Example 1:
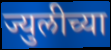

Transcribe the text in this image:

ज्युलीच्या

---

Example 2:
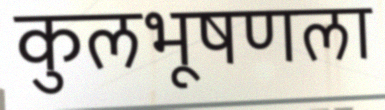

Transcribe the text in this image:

कुलभूषणला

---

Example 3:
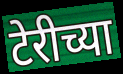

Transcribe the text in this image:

टेरीच्या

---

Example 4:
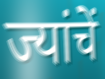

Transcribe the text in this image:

ज्यांचें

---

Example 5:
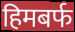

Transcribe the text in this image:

हिमबर्फ